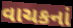
વાચકનાં